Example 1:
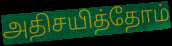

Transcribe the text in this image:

அதிசயித்தோம்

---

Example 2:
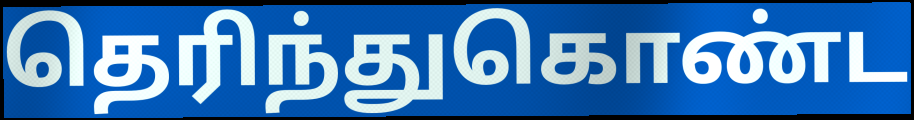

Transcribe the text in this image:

தெரிந்துகொண்ட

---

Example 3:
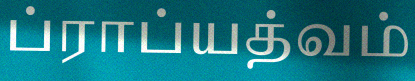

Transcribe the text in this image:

ப்ராப்யத்வம்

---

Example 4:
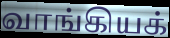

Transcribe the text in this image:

வாங்கியக்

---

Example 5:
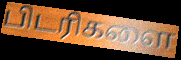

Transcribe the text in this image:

பிடரிகளை